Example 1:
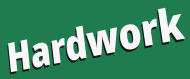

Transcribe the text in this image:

Hardwork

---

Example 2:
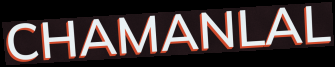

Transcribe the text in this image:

CHAMANLAL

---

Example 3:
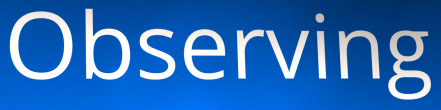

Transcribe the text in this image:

Observing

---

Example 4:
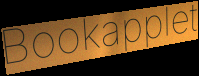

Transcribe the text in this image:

Bookapplet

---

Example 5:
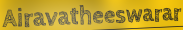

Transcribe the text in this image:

Airavatheeswarar